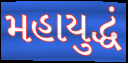
મહાયુદ્ધં